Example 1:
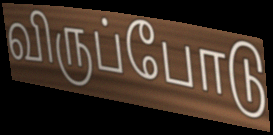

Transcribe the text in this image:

விருப்போடு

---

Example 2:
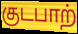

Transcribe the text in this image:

குடபாற்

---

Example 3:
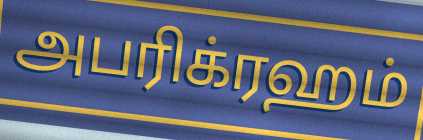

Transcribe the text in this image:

அபரிக்ரஹம்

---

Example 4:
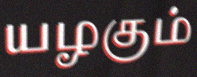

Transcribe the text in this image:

யழகும்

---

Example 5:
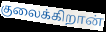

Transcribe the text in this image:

குலைக்கிறான்